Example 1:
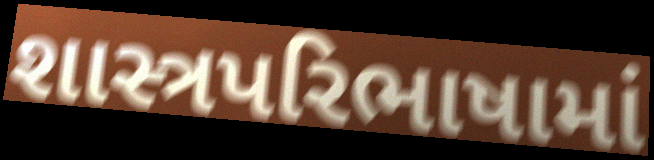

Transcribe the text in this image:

શાસ્ત્રપરિભાષામાં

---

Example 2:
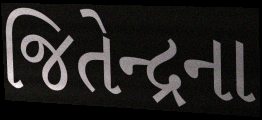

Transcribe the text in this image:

જિતેન્દ્રના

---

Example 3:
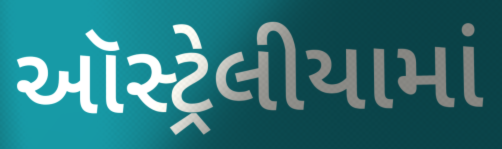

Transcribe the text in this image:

ઑસ્ટ્રેલીયામાં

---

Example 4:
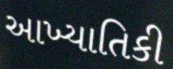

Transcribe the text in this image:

આખ્યાતિકી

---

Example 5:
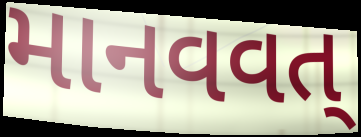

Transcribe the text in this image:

માનવવત્